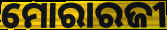
ମୋରାରଜୀ